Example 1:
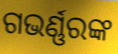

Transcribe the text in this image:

ଗଭର୍ଣ୍ଣରଙ୍କ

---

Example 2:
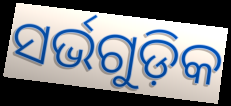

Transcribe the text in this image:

ସର୍ଭଗୁଡ଼ିକ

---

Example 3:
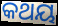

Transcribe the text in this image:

କଥୟ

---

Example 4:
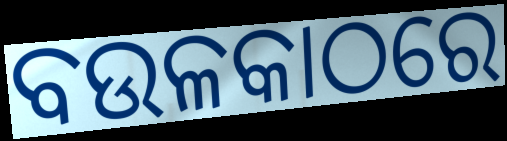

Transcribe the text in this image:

ବଉଳକାଠରେ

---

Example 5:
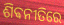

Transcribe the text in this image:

ଶିଵନୀତିରେ